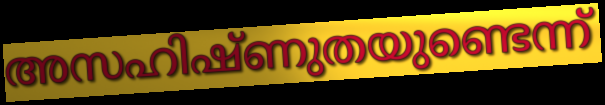
അസഹിഷ്ണുതയുണ്ടെന്ന്